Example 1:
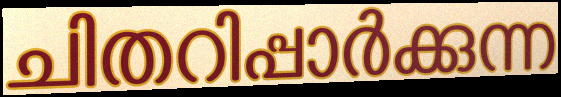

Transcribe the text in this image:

ചിതറിപ്പാർക്കുന്ന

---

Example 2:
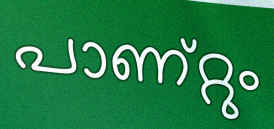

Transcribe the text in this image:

പാണ്റ്റും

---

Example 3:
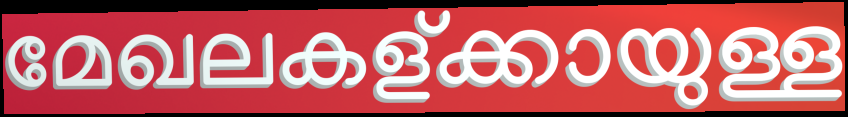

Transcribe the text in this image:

മേഖലകള്ക്കായുള്ള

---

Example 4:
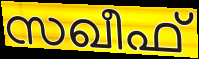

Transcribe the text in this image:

സഖീഫ്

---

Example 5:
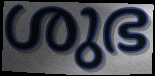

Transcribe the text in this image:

ശുഭ